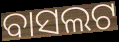
ବାସଲଟ